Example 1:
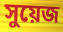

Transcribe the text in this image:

সুয়েজ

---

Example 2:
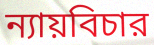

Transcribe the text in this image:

ন্যায়বিচার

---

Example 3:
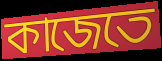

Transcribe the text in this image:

কাজেতে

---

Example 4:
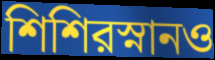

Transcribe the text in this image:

শিশিরস্নানও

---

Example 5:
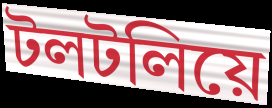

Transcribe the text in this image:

টলটলিয়ে